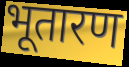
भूतारण